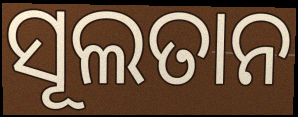
ସୂଲତାନ